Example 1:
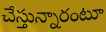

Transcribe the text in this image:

చేస్తున్నారంటూ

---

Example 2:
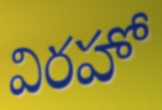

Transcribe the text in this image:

విరహో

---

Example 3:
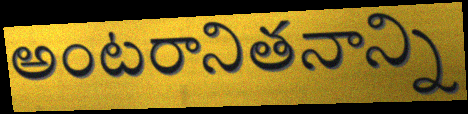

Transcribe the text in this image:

అంటరానితనాన్ని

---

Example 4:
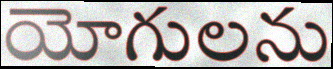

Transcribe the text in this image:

యోగులను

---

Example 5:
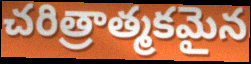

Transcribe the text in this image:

చరిత్రాత్మకమైన